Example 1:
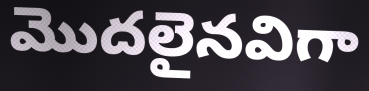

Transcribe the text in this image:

మొదలైనవిగా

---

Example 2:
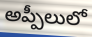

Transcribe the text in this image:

అప్పీలులో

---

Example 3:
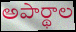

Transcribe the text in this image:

అపార్థాల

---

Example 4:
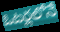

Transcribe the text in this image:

ఓటర్లలోనే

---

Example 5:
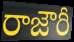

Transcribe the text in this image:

రాజౌరీ